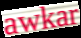
awkar